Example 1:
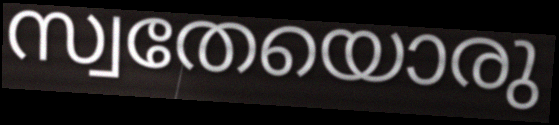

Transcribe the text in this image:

സ്വതേയൊരു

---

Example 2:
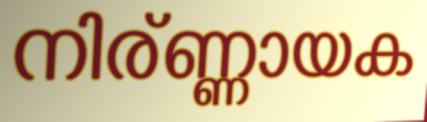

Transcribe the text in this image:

നിര്ണ്ണായക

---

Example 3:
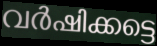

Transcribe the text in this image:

വർഷിക്കട്ടെ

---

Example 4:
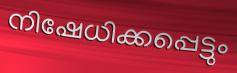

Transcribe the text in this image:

നിഷേധിക്കപ്പെട്ടും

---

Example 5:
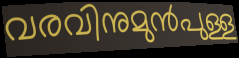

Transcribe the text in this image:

വരവിനുമുൻപുള്ള